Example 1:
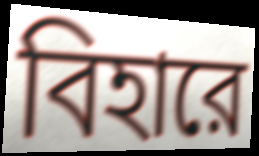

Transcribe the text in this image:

বিহারে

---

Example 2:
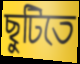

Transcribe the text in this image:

ছুটিতে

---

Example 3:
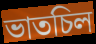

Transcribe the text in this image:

ভাতচিল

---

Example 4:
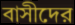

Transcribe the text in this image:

বাসীদের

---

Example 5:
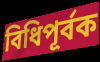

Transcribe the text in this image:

বিধিপূর্বক